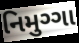
નિમુગ્ગા